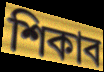
শিকাব